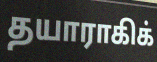
தயாராகிக்